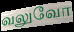
வலுவோ